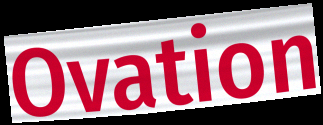
Ovation